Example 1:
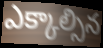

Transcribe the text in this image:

ఎక్కాల్సిన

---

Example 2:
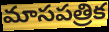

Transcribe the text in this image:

మాసపత్రిక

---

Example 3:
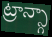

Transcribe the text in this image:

ట్రాన్స్గా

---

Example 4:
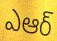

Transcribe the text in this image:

ఎఆర్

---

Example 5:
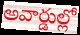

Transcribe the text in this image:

అవార్డుల్లో